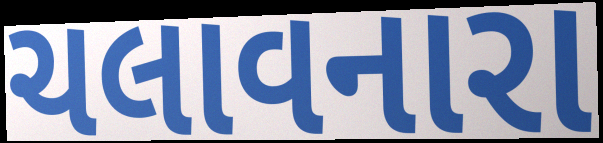
ચલાવનારા